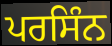
ਪਰਸਿੰਨ